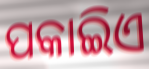
ପକାଇିଏ